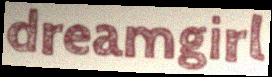
dreamgirl